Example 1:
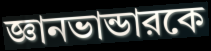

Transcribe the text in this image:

জ্ঞানভান্ডারকে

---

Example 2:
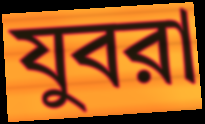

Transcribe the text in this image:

যুবরা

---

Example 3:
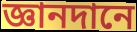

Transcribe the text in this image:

জ্ঞানদানে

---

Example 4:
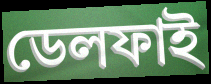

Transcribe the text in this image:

ডেলফাই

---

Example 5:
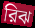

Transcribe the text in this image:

রিঝ